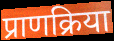
प्राणक्रिया